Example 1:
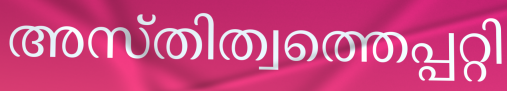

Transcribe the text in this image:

അസ്തിത്വത്തെപ്പറ്റി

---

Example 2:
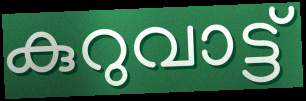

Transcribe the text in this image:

കുറുവാട്ട്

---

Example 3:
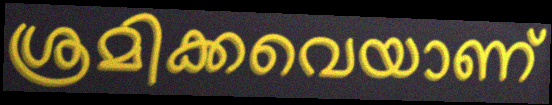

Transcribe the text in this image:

ശ്രമിക്കവെയാണ്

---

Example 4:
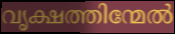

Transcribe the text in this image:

വൃക്ഷത്തിന്മേൽ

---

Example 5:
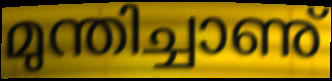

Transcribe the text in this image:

മുന്തിച്ചാണു്